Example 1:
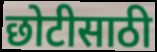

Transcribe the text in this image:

छोटीसाठी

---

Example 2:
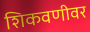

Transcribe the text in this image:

शिकवणीवर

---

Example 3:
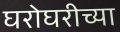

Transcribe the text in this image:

घरोघरीच्या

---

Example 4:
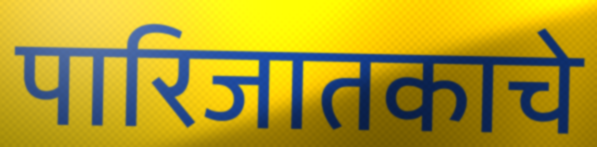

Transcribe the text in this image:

पारिजातकाचे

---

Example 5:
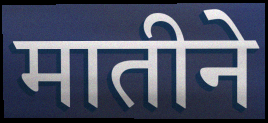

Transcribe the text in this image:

मातीने